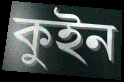
কুইন